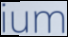
ium